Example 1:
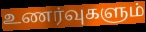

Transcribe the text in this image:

உணர்வுகளும்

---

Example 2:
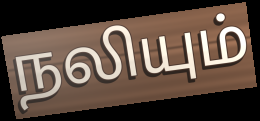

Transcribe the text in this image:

நலியும்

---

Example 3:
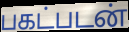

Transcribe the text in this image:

பகட்படன்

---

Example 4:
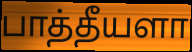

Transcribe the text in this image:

பாத்தீயளா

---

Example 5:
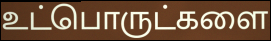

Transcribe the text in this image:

உட்பொருட்களை